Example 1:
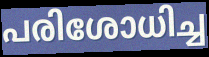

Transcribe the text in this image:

പരിശോധിച്ച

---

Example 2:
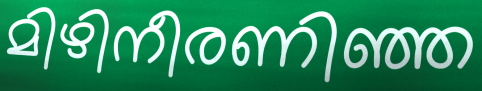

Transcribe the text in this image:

മിഴിനീരണിഞ്ഞ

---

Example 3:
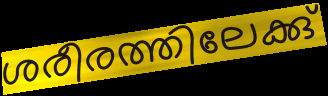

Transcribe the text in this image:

ശരീരത്തിലേക്കു്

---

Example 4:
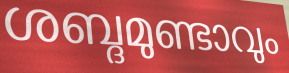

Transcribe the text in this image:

ശബ്ദമുണ്ടാവും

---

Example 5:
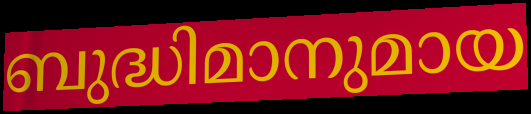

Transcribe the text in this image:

ബുദ്ധിമാനുമായ